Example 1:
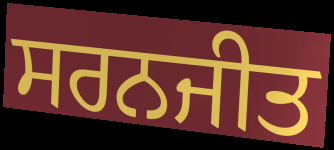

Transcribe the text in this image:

ਸਰਨਜੀਤ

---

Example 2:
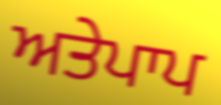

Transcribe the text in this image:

ਅਤੇਪਾਪ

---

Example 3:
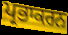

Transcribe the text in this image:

ਪ੍ਰਭਾਕਰਨ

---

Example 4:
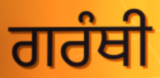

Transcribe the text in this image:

ਗਰੰਥੀ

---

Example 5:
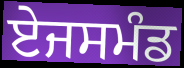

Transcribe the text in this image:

ਏਜਸਮੰਡ